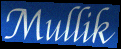
Mullik